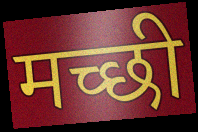
मच्छी